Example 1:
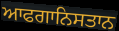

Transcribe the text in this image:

ਆਫਗਾਨਿਸਤਾਨ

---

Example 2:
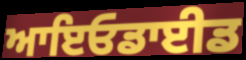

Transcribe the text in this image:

ਆਇਓਡਾਈਡ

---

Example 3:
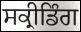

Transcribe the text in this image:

ਸਕ੍ਰੀਡਿੰਗ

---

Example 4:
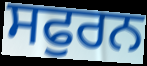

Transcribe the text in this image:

ਸਫੁਰਨ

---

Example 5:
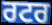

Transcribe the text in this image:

ਰਟਰ